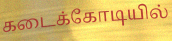
கடைக்கோடியில்